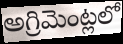
అగ్రిమెంట్లలో